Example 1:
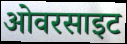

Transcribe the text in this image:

ओवरसाइट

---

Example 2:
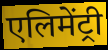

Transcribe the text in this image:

एलिमेंट्री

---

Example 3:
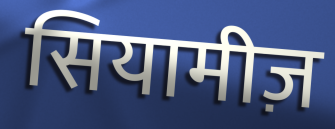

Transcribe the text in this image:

सियामीज़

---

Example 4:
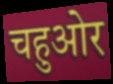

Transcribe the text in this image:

चहुओर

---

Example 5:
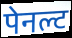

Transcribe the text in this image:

पेनल्ट